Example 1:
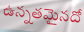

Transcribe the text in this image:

ఉన్నతమైనదో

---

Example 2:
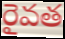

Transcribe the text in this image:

రైవత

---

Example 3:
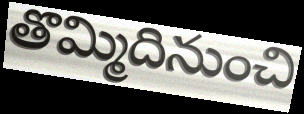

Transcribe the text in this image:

తొమ్మిదినుంచి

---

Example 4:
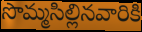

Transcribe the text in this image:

సొమ్మసిల్లినవారికి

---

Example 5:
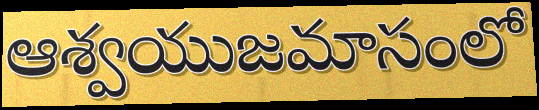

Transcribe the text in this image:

ఆశ్వయుజమాసంలో